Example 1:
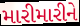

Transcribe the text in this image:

મારીમારીને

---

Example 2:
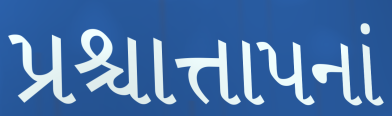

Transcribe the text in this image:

પ્રશ્ચાત્તાપનાં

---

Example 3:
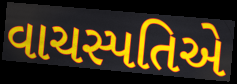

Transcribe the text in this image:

વાચસ્પતિએ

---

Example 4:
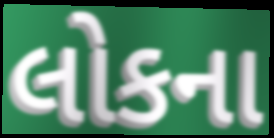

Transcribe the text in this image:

લોકના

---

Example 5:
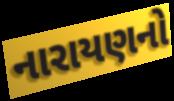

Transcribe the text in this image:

નારાયણનો